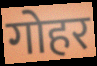
गोहर